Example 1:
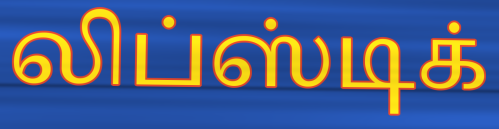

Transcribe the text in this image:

லிப்ஸ்டிக்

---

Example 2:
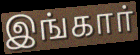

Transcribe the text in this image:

இங்கார்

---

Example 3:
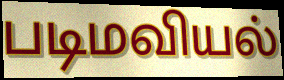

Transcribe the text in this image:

படிமவியல்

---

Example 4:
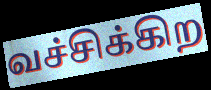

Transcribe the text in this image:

வச்சிக்கிற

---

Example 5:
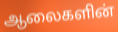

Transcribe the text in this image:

ஆலைகளின்